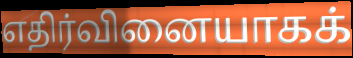
எதிர்வினையாகக்